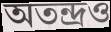
অতন্দ্রও